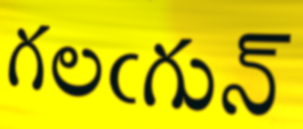
గలఁగున్